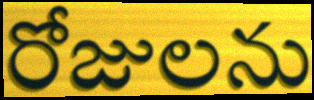
రోజులను